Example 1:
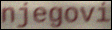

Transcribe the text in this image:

njegovi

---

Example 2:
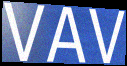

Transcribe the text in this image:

VAV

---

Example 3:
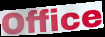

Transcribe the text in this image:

Office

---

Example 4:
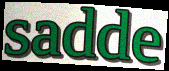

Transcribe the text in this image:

sadde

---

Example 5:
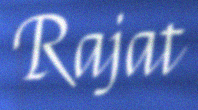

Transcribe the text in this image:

Rajat